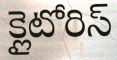
క్లైటోరిస్